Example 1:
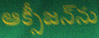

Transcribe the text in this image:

ఆక్సీజన్‌ను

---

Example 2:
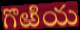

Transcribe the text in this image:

గొఱియ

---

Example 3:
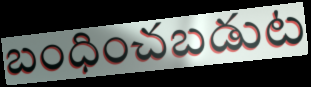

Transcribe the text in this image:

బంధించబడుట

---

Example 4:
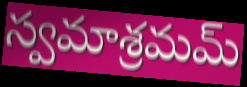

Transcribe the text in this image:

స్వమాశ్రమమ్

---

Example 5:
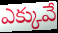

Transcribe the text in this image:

ఎక్కువే